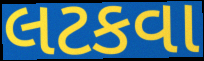
લટકવા